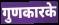
गुणकारके